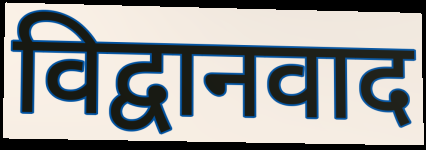
विद्वानवाद